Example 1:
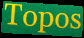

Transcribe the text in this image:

Topos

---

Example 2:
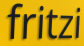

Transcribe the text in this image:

fritzi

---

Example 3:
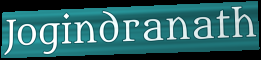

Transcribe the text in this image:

Jogindranath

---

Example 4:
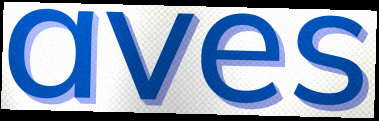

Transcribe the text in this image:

aves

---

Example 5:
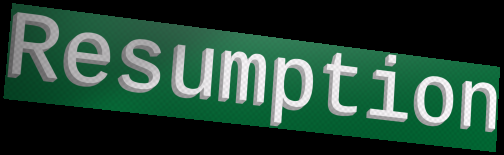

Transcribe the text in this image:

Resumption